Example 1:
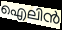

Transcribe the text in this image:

ഐലിൻ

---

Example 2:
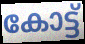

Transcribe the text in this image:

കോട്ട്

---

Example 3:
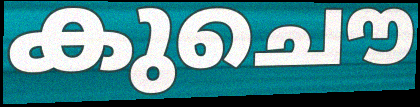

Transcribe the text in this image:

കുചൌ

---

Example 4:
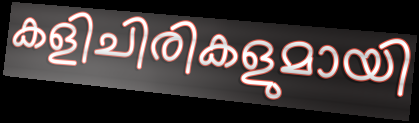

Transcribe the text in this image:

കളിചിരികളുമായി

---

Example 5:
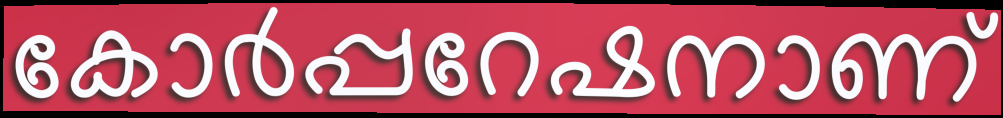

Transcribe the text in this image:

കോർപ്പറേഷനാണ്